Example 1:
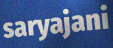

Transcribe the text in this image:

saryajani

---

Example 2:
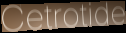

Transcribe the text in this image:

Cetrotide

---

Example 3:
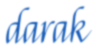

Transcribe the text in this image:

darak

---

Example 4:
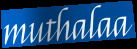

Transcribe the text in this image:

muthalaa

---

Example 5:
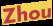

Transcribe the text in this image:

Zhou